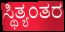
ಸ್ಥಿತ್ಯಂತರ